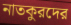
নাতকুরদের